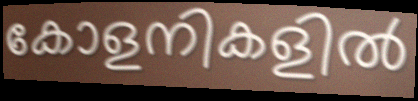
കോളനികളിൽ